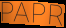
PAPR